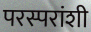
परस्परांशी